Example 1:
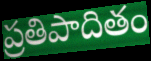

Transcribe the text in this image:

ప్రతిపాదితం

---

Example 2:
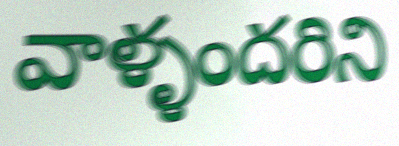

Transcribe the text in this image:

వాళ్ళందరిని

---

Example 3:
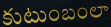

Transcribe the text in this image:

కుటుంబంలా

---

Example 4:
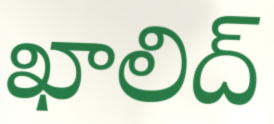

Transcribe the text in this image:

ఖాలిద్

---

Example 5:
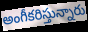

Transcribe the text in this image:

అంగీకరిస్తున్నారు